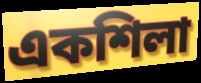
একশিলা